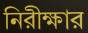
নিরীক্ষার